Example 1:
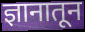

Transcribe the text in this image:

ज्ञानातून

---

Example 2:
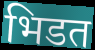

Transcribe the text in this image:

भिडत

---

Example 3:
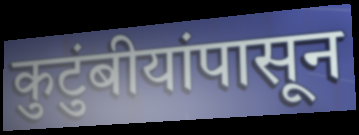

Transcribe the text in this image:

कुटुंबीयांपासून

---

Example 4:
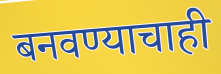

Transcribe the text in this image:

बनवण्याचाही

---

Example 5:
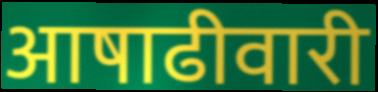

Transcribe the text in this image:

आषाढीवारी